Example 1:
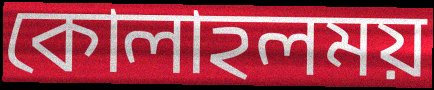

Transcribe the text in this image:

কোলাহলময়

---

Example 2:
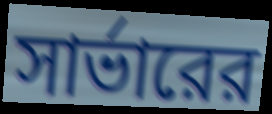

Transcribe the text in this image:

সার্ভারের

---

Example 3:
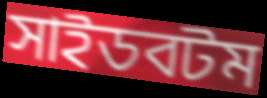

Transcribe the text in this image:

সাইডবটম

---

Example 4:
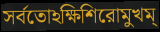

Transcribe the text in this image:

সর্বতোঽক্ষিশিরোমুখম্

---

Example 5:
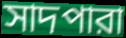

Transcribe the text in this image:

সাদপারা